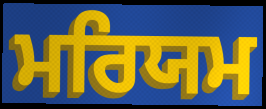
ਮਰਿਯਮ